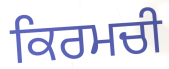
ਕਿਰਮਚੀ